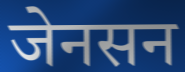
जेनसन